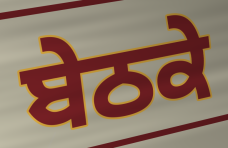
ਬੇਠਕੇ